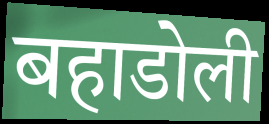
बहाडोली